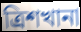
ত্রিশখানা